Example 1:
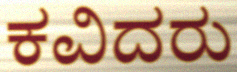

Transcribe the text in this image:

ಕವಿದರು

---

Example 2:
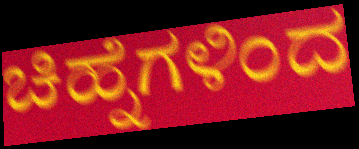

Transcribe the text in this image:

ಚಿಹ್ನೆಗಳಿಂದ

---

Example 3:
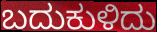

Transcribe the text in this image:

ಬದುಕುಳಿದು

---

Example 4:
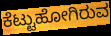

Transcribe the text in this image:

ಕೆಟ್ಟುಹೋಗಿರುವ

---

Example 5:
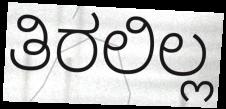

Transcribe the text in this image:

ತಿರಲಿಲ್ಲ